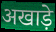
अखाड़े